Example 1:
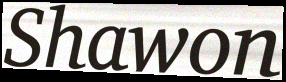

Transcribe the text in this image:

Shawon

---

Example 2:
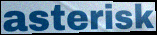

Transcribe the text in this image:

asterisk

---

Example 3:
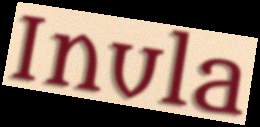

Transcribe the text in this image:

Inula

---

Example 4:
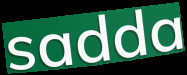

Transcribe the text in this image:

sadda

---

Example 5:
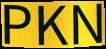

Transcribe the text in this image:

PKN